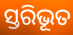
ସ୍ତରିଭୂତ